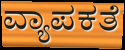
ವ್ಯಾಪಕತೆ